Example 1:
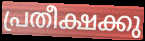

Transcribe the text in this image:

പ്രതീക്ഷക്കു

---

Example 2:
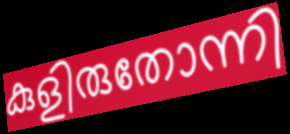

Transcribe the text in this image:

കുളിരുതോന്നി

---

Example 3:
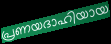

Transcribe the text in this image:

പ്രണയദാഹിയായ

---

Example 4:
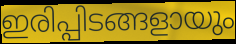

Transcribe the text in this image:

ഇരിപ്പിടങ്ങളായും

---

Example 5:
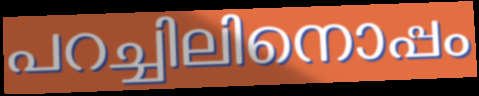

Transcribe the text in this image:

പറച്ചിലിനൊപ്പം